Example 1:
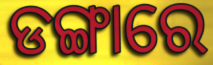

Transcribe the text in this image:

ଡଙ୍ଗାରେ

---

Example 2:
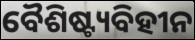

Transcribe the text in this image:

ବୈଶିଷ୍ଟ୍ୟବିହୀନ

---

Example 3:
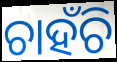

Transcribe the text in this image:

ଚାହଁଚି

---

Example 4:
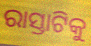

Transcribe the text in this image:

ରାସ୍ତାଟିକୁ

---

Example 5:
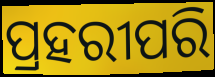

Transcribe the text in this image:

ପ୍ରହରୀପରି